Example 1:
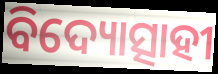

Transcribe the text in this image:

ବିଦ୍ୟୋତ୍ସାହୀ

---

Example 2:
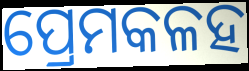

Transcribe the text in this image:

ପ୍ରେମକଳହ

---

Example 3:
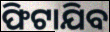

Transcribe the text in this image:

ଫିଟାଯିବ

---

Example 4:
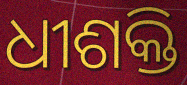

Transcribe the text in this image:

ଧୀଶକ୍ତି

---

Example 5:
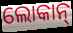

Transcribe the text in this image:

ଲୋକାନ୍